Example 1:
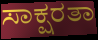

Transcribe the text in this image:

ಸಾಕ್ಷರತಾ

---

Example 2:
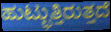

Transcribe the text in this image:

ಹುಟ್ಟುತ್ತಿರುತ್ತದೆ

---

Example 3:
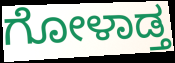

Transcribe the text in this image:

ಗೋಳಾಡ್ತ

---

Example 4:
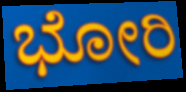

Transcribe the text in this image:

ಭೋರಿ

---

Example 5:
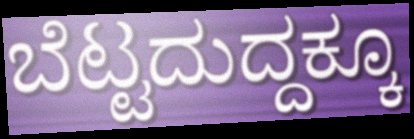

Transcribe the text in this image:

ಬೆಟ್ಟದುದ್ದಕ್ಕೂ